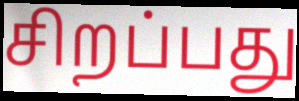
சிறப்பது